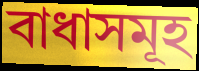
বাধাসমূহ